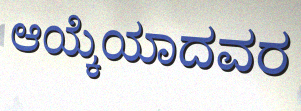
ಆಯ್ಕೆಯಾದವರ